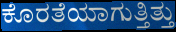
ಕೊರತೆಯಾಗುತ್ತಿತ್ತು